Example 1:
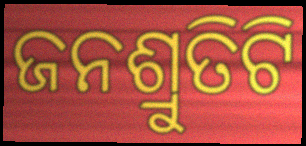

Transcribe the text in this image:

ଜନଶ୍ରୁତିଟି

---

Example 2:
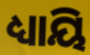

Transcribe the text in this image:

ଧ୍ୟାୟି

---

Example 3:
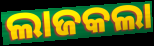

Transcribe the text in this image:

ଲାଜକଲା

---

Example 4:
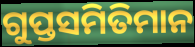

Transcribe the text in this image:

ଗୁପ୍ତସମିତିମାନ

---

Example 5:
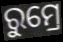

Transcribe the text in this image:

ରୁମ୍ରେ